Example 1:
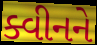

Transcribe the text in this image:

ક્વીનને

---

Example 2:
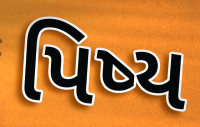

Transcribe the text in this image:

પિષ્ય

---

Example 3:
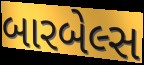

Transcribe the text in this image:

બારબેલ્સ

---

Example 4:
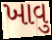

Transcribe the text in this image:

ખાવુ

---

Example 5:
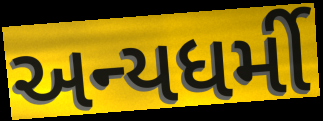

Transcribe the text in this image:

અન્યધર્મી